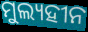
ମୁଲ୍ୟହୀନ